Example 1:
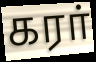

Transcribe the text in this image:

கரர்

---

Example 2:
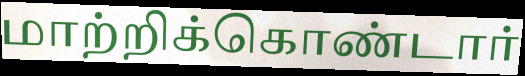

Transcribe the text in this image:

மாற்றிக்கொண்டார்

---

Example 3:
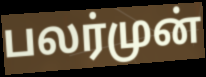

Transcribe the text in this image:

பலர்முன்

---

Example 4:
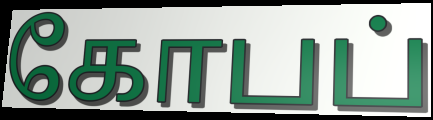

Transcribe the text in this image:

கோபப்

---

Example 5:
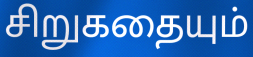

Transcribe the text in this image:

சிறுகதையும்